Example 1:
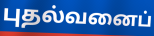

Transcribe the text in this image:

புதல்வனைப்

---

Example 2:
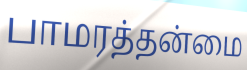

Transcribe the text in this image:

பாமரத்தன்மை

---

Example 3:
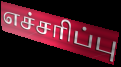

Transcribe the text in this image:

எச்சரிப்பு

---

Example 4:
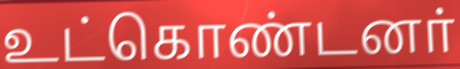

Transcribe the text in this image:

உட்கொண்டனர்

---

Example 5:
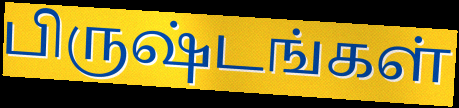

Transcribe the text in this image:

பிருஷ்டங்கள்